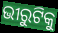
ଭୀରୁଟିକୁ